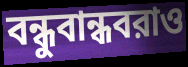
বন্ধুবান্ধবরাও